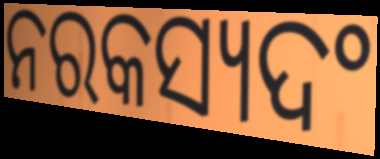
ନରକସ୍ୟଦଂ